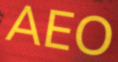
AEO